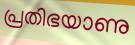
പ്രതിഭയാണു